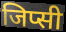
जिप्सी